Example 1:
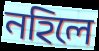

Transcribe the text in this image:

নহিলে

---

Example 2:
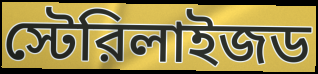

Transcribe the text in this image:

স্টেরিলাইজড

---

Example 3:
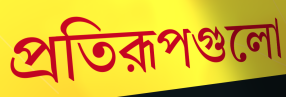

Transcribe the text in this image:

প্রতিরূপগুলো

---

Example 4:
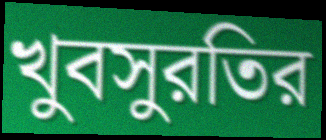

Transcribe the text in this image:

খুবসুরতির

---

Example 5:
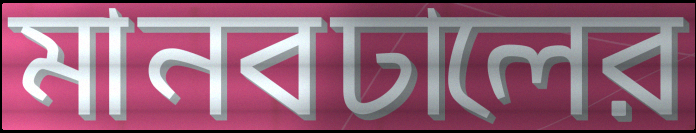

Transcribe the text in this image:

মানবঢালের